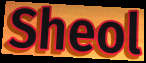
Sheol